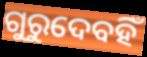
ଗୁରୁଦେବହିଁ